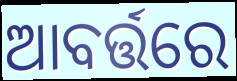
ଆବର୍ତ୍ତରେ